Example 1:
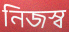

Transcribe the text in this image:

নিজস্ব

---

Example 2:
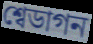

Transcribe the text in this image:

শ্বেডাগন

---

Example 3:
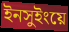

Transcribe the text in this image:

ইনসুইংয়ে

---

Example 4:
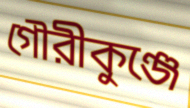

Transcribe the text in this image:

গৌরীকুঞ্জে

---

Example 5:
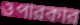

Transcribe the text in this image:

ওপারকার